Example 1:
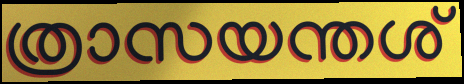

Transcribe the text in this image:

ത്രാസയന്തശ്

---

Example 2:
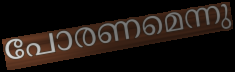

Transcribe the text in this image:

പോരണമെന്നു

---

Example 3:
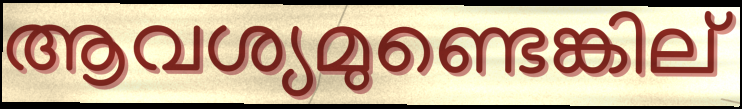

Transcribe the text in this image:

ആവശ്യമുണ്ടെങ്കില്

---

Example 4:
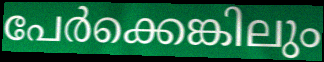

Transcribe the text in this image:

പേർക്കെങ്കിലും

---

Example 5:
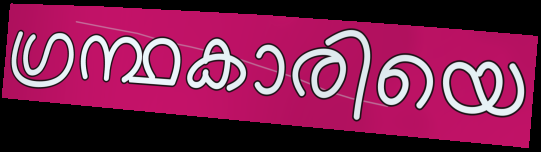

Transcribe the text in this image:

ഗ്രന്ഥകാരിയെ